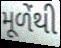
મૂળેંથી